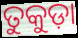
ତୁକୁଡ଼ା